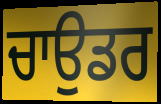
ਚਾਉਡਰ